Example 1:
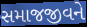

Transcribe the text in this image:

સમાજજીવને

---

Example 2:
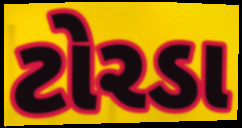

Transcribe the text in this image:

ટોરડા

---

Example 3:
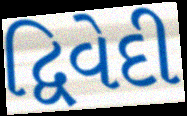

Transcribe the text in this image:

દ્વિવેદી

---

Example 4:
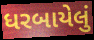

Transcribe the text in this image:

ધરબાયેલું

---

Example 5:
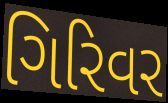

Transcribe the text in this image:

ગિરિવર